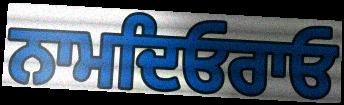
ਨਾਮਦਿਓਰਾਓ